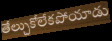
తేల్చుకోలేకపోయాడు